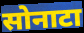
सोनाटा